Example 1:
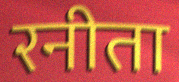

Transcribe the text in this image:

रनीता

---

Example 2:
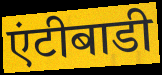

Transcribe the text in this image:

एंटीबाडी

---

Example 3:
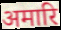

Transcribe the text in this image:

अमारि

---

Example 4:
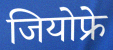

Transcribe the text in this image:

जियोफ्रे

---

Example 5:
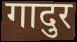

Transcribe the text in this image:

गादुर